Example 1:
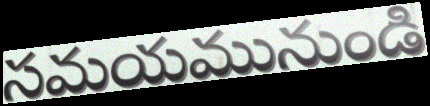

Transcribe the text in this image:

సమయమునుండి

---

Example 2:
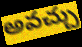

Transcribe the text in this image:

అవచ్చు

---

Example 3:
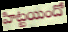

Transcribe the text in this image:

హిట్టయిందో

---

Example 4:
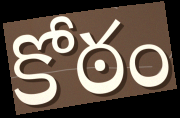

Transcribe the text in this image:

కోఠం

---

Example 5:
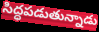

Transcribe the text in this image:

సిద్ధపడుతున్నాడు